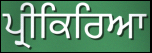
ਪ੍ਰੀਕਿਰਿਆ